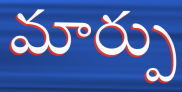
మార్పు